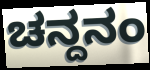
ಚನ್ದನಂ